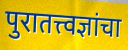
पुरातत्त्वज्ञांचा